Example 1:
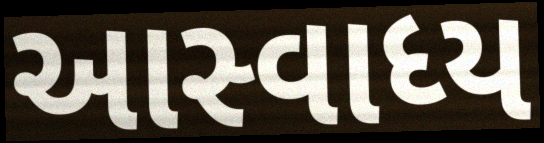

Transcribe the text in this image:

આસ્વાધ્ય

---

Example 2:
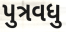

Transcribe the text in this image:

પુત્રવધુ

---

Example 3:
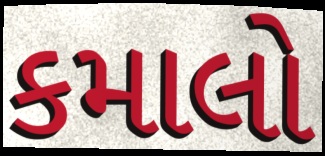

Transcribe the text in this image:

કમાલો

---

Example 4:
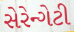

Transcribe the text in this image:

સેરેન્ગેટી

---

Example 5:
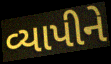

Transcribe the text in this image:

વ્યાપીને